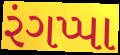
રંગપ્પા